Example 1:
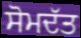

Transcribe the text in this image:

ਸੋਮਦੱਤ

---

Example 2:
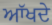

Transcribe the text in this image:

ਆੱਖਦੇ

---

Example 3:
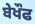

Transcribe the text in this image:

ਬੇਖੌਫ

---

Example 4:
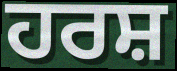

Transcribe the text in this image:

ਹਰਸ਼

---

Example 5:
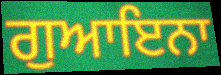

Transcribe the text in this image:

ਗੁਆਇਨਾ